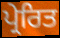
ਪ੍ਰੇਰਿਤ